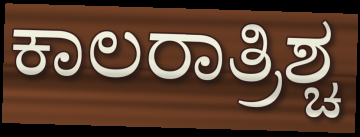
ಕಾಲರಾತ್ರಿಶ್ಚ